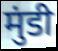
मुंडी